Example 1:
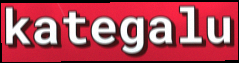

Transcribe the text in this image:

kategalu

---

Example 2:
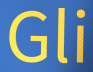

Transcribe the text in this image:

Gli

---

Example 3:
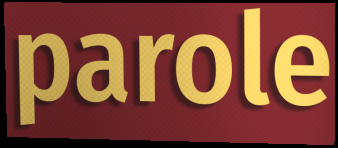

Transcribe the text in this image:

parole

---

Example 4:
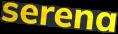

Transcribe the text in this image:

serena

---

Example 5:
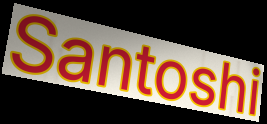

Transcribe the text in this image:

Santoshi